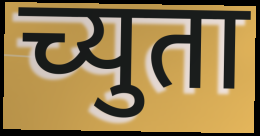
च्युता